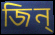
জিন্